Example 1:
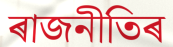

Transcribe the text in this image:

ৰাজনীতিৰ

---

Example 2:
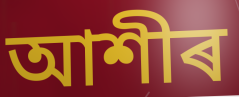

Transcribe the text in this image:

আশীৰ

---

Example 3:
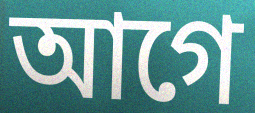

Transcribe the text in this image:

আগে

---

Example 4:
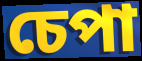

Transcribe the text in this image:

চেপা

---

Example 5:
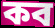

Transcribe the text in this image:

কব